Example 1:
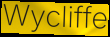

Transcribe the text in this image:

Wycliffe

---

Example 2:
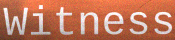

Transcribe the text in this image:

Witness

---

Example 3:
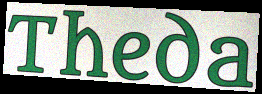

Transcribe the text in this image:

Theda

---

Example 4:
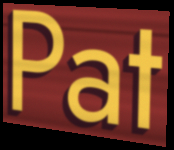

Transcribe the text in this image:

Pat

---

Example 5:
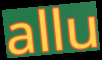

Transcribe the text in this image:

allu